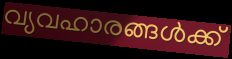
വ്യവഹാരങ്ങൾക്ക്